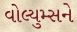
વોલ્યુમ્સને